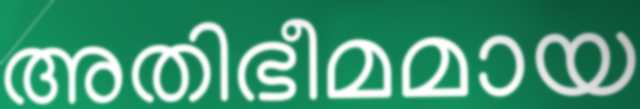
അതിഭീമമായ